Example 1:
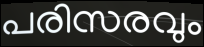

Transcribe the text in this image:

പരിസരവും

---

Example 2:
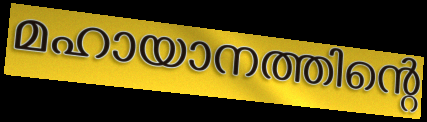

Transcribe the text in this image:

മഹായാനത്തിന്റെ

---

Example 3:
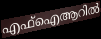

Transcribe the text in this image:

എഫ്ഐആറിൽ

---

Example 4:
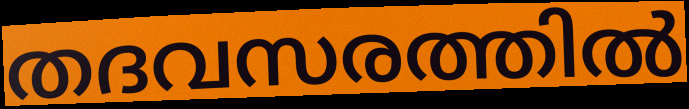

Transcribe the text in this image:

തദവസരത്തിൽ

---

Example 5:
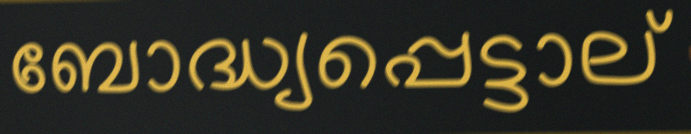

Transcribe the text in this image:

ബോദ്ധ്യപ്പെട്ടാല്